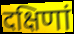
दक्षिणां